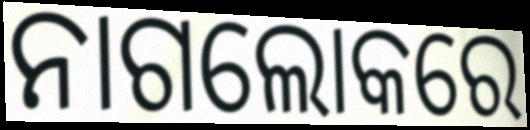
ନାଗଲୋକରେ